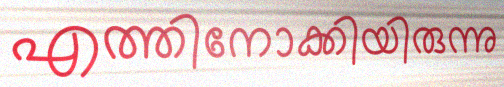
എത്തിനോക്കിയിരുന്നു